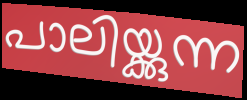
പാലിയ്ക്കുന്ന